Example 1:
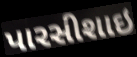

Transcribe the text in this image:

પારસીશાઇ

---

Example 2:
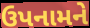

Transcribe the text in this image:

ઉપનામને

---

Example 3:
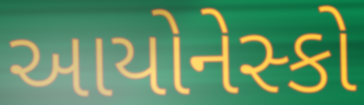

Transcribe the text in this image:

આયોનેસ્કો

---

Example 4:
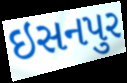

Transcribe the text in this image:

ઇસનપુર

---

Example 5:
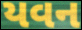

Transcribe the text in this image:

યવન